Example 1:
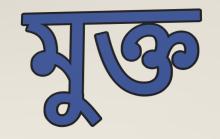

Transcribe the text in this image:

মুক্ত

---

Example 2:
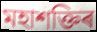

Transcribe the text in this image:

মহাশক্তিৰ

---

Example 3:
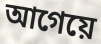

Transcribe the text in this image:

আগেয়ে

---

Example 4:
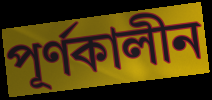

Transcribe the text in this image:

পূৰ্ণকালীন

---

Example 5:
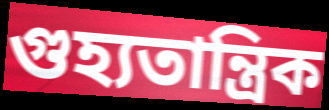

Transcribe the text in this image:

গুহ্যতান্ত্ৰিক